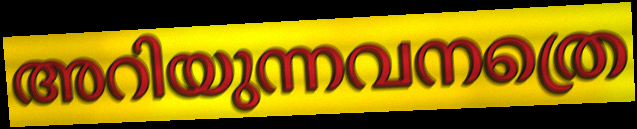
അറിയുന്നവനത്രെ